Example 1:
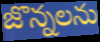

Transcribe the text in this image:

జొన్నలను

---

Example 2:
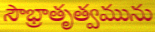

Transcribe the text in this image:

సౌభ్రాతృత్వమును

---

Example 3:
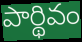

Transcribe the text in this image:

పార్థివం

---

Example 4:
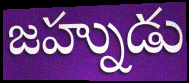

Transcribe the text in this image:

జహ్నుడు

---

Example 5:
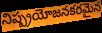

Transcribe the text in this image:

నిష్ప్రయోజనకరమైన